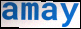
amay